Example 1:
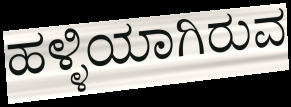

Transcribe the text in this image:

ಹಳ್ಳಿಯಾಗಿರುವ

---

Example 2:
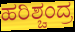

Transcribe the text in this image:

ಹರಿಶ್ಚಂದ್ರ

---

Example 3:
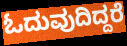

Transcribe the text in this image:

ಓದುವುದಿದ್ದರೆ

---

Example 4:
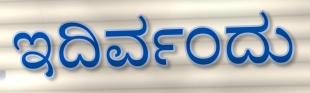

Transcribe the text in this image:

ಇದಿರ್ವಂದು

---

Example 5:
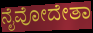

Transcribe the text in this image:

ನೈವೋದೇತಾ